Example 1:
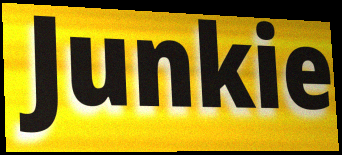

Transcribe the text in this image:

Junkie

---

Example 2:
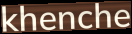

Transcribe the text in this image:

khenche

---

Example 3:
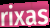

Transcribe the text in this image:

rixas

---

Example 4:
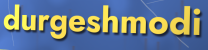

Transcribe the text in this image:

durgeshmodi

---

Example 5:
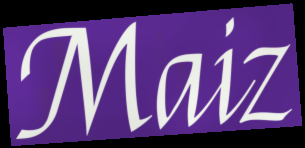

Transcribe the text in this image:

Maiz